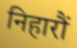
निहारौं